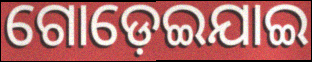
ଗୋଡ଼େଇଯାଇ